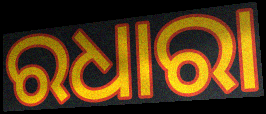
ରଧାରା